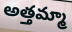
అత్తమ్మా